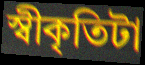
স্বীকৃতিটা